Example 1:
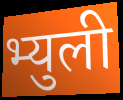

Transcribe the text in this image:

भ्युली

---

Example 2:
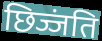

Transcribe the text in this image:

छिज्जंति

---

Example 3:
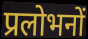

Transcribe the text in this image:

प्रलोभनों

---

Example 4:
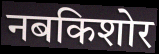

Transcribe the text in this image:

नबकिशोर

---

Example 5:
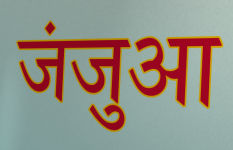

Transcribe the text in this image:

जंजुआ